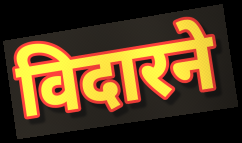
विदारने